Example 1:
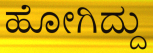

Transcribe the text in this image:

ಹೋಗಿದ್ದು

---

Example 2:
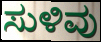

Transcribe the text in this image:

ಸುಳಿವು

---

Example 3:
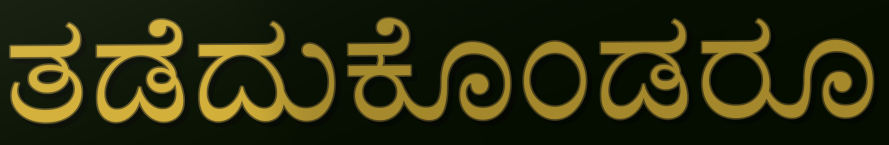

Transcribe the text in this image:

ತಡೆದುಕೊಂಡರೂ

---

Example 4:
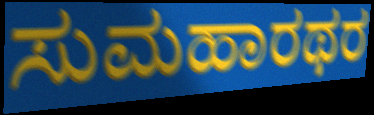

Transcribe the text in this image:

ಸುಮಹಾರಥರ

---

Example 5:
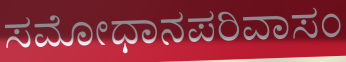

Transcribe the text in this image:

ಸಮೋಧಾನಪರಿವಾಸಂ